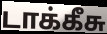
டாக்கீசு